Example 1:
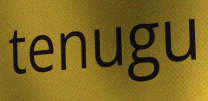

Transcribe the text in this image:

tenugu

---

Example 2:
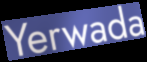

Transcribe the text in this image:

Yerwada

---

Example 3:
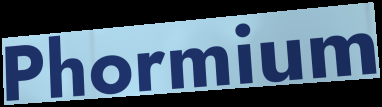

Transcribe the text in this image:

Phormium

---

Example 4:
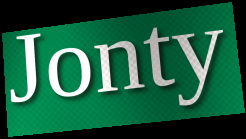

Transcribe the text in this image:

Jonty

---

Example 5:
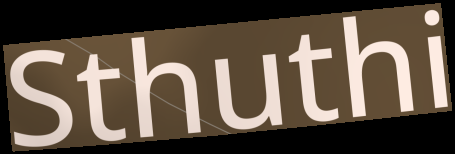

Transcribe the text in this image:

Sthuthi